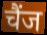
चैंज